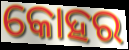
କୋହର